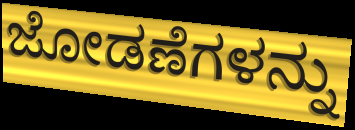
ಜೋಡಣೆಗಳನ್ನು